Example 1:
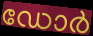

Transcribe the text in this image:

ഡോർ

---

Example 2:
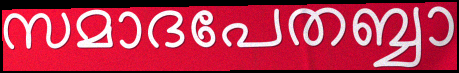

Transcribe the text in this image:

സമാദപേതബ്ബാ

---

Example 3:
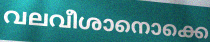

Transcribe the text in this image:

വലവീശാനൊക്കെ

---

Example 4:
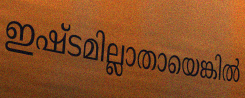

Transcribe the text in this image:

ഇഷ്ടമില്ലാതായെങ്കിൽ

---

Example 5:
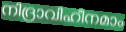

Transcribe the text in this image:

നിദ്രാവിഹീനമാം